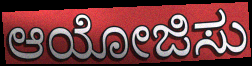
ಆಯೋಜಿಸು